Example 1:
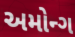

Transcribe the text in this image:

અમોન્ગ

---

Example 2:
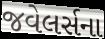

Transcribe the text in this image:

જવેલર્સના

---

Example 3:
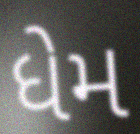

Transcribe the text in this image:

ધેમ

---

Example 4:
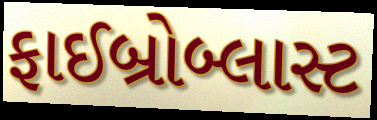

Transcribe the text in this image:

ફાઈબ્રોબ્લાસ્ટ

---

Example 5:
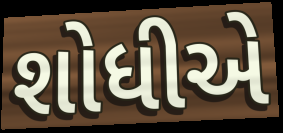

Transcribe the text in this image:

શોધીએ